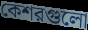
কেশরগুলো